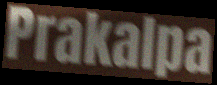
Prakalpa